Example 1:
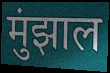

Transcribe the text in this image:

मुंझाल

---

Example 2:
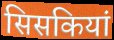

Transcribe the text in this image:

सिसकियां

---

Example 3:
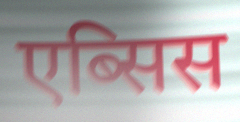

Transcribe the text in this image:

एब्सिस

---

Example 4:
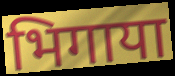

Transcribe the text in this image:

भिगाया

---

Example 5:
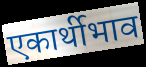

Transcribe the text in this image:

एकार्थीभाव